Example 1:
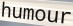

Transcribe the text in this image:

humour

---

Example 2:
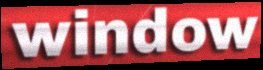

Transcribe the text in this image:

window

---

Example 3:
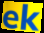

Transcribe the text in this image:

ek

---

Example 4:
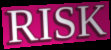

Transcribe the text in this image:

RISK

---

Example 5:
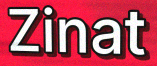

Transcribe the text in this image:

Zinat